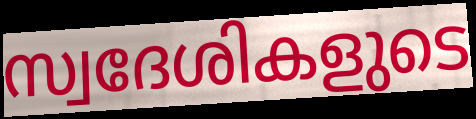
സ്വദേശികളുടെ